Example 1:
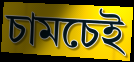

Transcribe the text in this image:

চামচেই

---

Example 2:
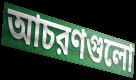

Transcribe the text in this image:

আচরণগুলো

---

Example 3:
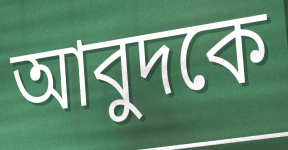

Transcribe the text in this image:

আবুদকে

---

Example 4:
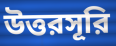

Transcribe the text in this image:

উত্তরসূরি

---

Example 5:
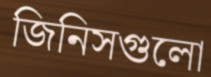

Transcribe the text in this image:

জিনিসগুলো